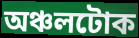
অঞ্চলটোক